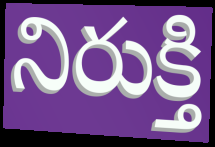
నిరుక్తి